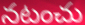
నటంచు